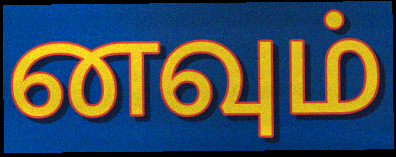
னவும்